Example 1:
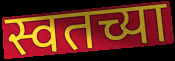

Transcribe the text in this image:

स्वतच्या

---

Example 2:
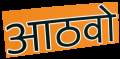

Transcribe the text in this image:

आठवो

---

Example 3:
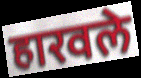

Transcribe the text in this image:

हारवले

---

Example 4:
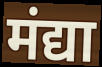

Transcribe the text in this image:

मंद्या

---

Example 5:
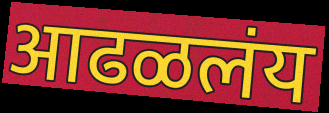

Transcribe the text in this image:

आढळलंय